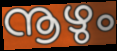
നൂഴും